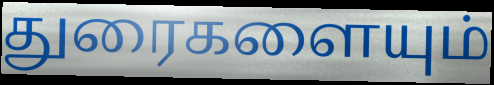
துரைகளையும்